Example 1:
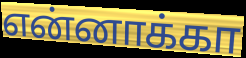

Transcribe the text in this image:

என்னாக்கா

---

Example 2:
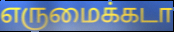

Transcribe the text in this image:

எருமைக்கடா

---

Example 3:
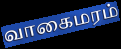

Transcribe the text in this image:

வாகைமரம்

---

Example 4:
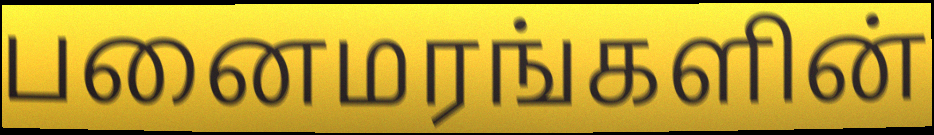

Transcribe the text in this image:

பனைமரங்களின்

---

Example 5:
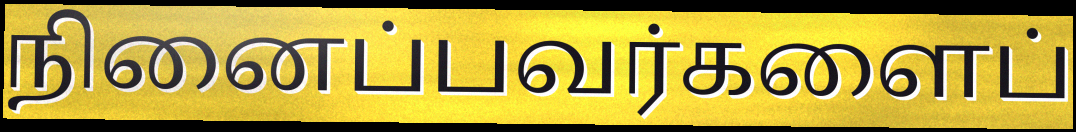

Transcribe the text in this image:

நினைப்பவர்களைப்